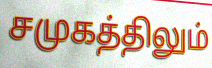
சமுகத்திலும்